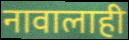
नावालाही